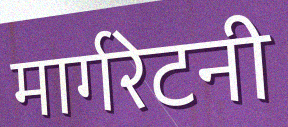
मार्गरेटनी